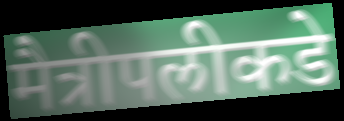
मैत्रीपलीकडे